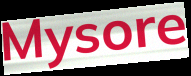
Mysore